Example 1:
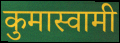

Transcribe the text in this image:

कुमास्वामी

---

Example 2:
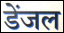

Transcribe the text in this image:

डेंजल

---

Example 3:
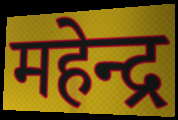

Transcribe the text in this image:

महेन्द्र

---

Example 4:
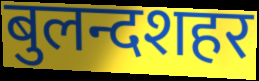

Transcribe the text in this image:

बुलन्दशहर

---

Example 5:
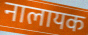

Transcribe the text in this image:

नालायक